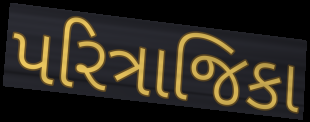
પરિત્રાજિકા